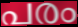
പരം